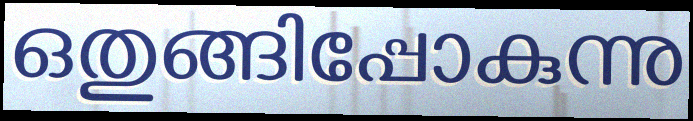
ഒതുങ്ങിപ്പോകുന്നു